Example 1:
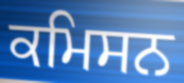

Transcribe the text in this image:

ਕਮਿਸਨ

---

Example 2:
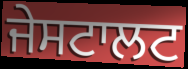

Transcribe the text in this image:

ਜੇਸਟਾਲਟ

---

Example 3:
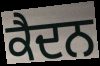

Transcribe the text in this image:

ਕੈਦਨ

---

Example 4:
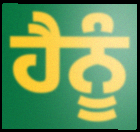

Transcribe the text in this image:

ਹੈਨੂੰ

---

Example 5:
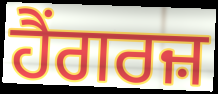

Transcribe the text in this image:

ਹੈਂਗਰਜ਼